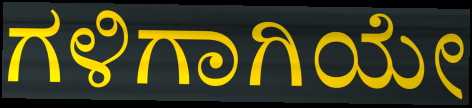
ಗಳಿಗಾಗಿಯೇ